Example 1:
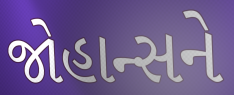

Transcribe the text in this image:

જોહાન્સને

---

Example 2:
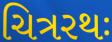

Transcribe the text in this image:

ચિત્રરથઃ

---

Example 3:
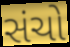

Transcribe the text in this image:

સંચો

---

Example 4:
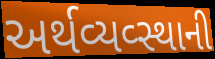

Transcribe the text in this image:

અર્થવ્યવ્સ્થાની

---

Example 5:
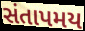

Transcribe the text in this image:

સંતાપમય